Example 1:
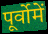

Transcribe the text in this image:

पूर्वोमें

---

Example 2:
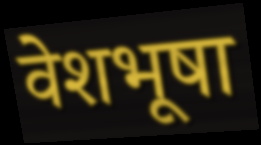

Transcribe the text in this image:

वेशभूषा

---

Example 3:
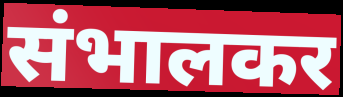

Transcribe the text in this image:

संभालकर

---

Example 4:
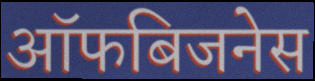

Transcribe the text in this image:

ऑफबिजनेस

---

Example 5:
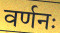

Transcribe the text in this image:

वर्णनः